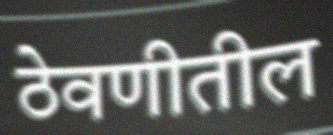
ठेवणीतील